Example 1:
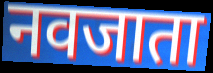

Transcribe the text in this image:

नवजाता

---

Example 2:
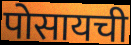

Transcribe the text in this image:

पोसायची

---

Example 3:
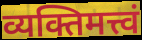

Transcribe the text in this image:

व्यक्तिमत्त्वं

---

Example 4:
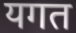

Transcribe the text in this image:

यगत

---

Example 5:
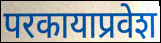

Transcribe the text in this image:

परकायाप्रवेश